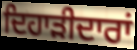
ਦਿਹਾੜੀਦਾਰਾਂ